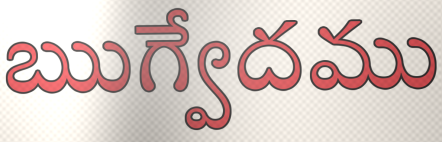
ఋగ్వేదము